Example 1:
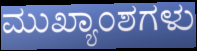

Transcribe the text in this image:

ಮುಖ್ಯಾಂಶಗಳು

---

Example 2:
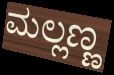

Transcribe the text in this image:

ಮಲ್ಲಣ್ಣ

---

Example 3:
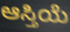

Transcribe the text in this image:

ಆಸ್ತಿಯೆ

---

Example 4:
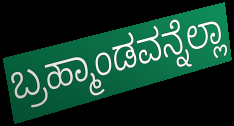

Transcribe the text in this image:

ಬ್ರಹ್ಮಾಂಡವನ್ನೆಲ್ಲಾ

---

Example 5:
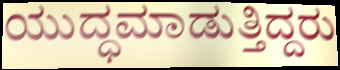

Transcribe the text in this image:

ಯುದ್ಧಮಾಡುತ್ತಿದ್ದರು